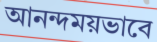
আনন্দময়ভাবে